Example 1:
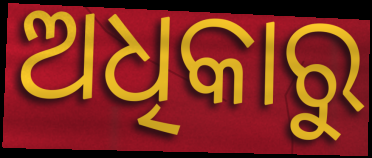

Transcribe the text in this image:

ଅଧିକାରୁ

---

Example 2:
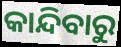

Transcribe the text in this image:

କାନ୍ଦିବାରୁ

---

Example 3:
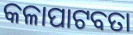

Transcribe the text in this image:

କଳାପାଟବତା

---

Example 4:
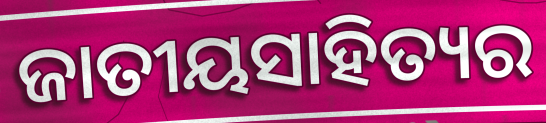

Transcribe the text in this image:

ଜାତୀୟସାହିତ୍ୟର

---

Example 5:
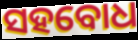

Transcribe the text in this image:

ସହବୋଧ